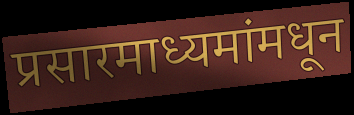
प्रसारमाध्यमांमधून